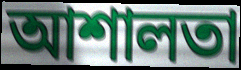
আশালতা